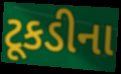
ટૂકડીના